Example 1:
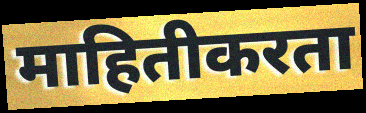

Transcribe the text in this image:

माहितीकरता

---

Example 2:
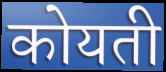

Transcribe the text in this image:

कोयती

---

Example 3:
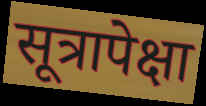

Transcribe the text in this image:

सूत्रापेक्षा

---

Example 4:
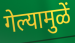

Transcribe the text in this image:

गेल्यामुळें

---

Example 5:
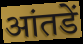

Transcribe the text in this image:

आंतडें